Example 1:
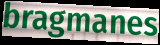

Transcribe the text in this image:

bragmanes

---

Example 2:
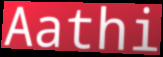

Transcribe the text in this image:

Aathi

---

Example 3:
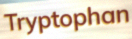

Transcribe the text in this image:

Tryptophan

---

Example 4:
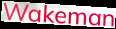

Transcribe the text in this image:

Wakeman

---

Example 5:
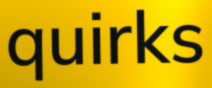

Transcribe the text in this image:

quirks